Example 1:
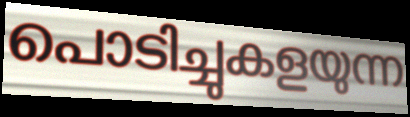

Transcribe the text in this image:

പൊടിച്ചുകളയുന്ന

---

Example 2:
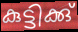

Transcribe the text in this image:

കുട്ടിക്കു്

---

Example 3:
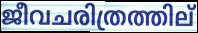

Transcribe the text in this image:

ജീവചരിത്രത്തില്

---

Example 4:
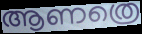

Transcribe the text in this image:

ആണത്രെ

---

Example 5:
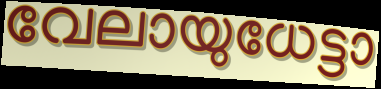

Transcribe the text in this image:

വേലായുധേട്ടാ